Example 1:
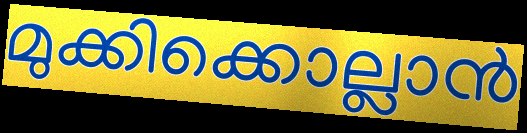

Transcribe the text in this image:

മുക്കിക്കൊല്ലാൻ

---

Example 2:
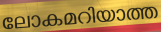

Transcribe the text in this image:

ലോകമറിയാത്ത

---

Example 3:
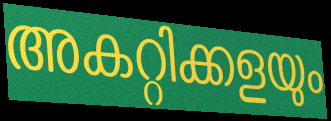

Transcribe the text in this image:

അകറ്റിക്കളയും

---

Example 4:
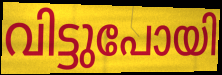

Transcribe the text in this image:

വിട്ടുപോയി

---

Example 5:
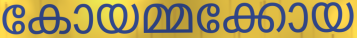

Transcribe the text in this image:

കോയമ്മക്കോയ